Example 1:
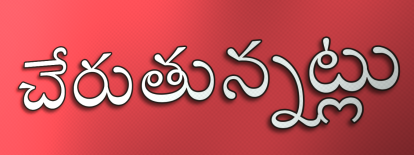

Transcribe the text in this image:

చేరుతున్నట్లు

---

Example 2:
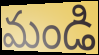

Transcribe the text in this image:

మండి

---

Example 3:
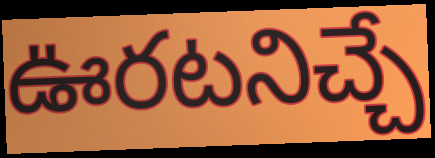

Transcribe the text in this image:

ఊరటనిచ్చే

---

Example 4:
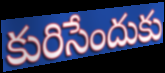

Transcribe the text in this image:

కురిసేందుకు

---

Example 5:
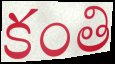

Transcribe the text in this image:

కంతి